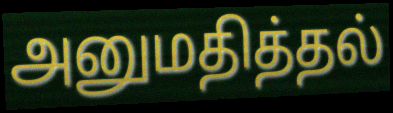
அனுமதித்தல்